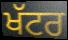
ਖੱਟਰ